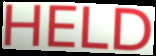
HELD